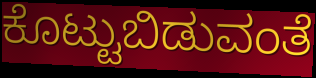
ಕೊಟ್ಟುಬಿಡುವಂತೆ